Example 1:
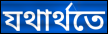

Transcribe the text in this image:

যথাৰ্থতে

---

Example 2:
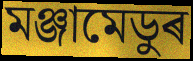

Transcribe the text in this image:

মঞ্জামেডুৰ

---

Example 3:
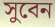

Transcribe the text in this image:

সুবেন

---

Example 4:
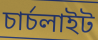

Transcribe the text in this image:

চাৰ্চলাইট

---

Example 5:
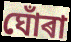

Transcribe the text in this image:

ঘোঁৰা